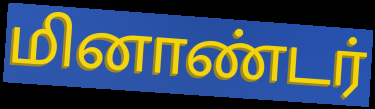
மினாண்டர்